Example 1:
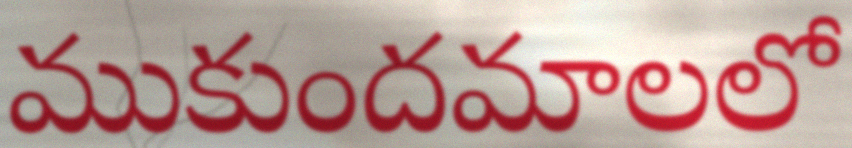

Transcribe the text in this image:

ముకుందమాలలో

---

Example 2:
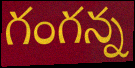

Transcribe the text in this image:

గంగన్న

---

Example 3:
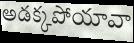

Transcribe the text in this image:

అడక్కపోయావా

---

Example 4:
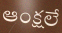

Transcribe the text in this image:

ఆంక్షలే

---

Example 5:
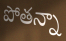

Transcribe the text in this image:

పోతన్నా